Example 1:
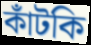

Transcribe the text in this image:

কাঁটকি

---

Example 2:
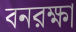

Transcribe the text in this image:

বনরক্ষা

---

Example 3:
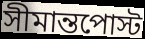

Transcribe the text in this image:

সীমান্তপোস্ট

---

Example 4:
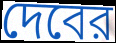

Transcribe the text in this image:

দেবের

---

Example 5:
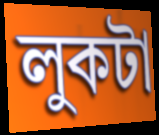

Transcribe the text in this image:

লুকটা